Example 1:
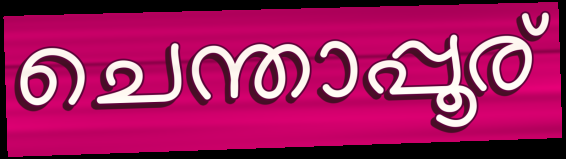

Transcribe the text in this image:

ചെന്താപ്പൂര്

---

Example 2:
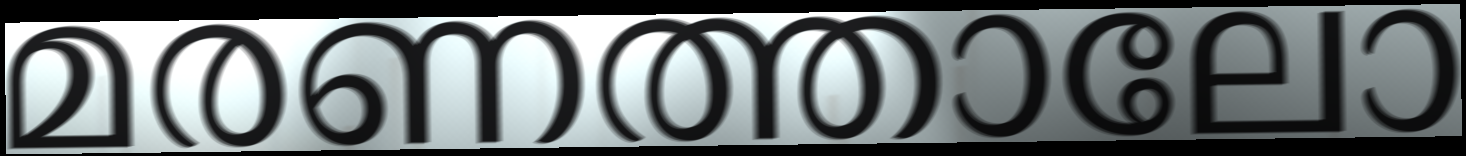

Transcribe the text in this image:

മരണത്താലോ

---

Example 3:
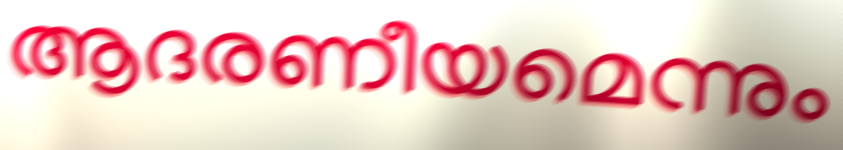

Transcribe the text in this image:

ആദരണീയമെന്നും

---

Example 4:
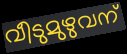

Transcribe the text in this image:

വീടുമുഴുവന്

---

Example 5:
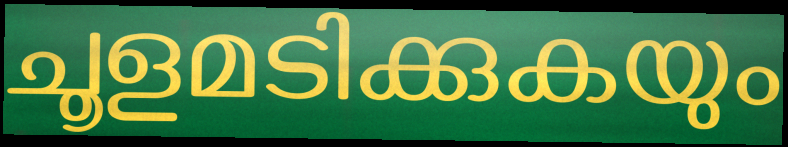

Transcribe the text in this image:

ചൂളമടിക്കുകയും